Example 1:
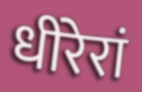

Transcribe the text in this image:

धीरेरां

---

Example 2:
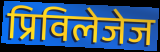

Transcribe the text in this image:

प्रिविलेजेज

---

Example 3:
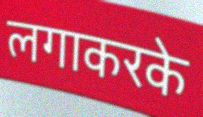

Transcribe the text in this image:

लगाकरके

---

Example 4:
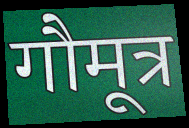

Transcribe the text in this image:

गौमूत्र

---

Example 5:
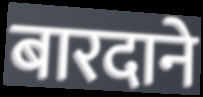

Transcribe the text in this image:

बारदाने